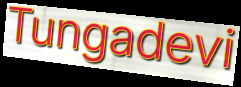
Tungadevi